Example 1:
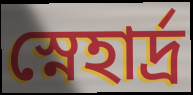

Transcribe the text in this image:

স্নেহার্দ্র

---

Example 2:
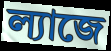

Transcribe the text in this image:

ল্যাজে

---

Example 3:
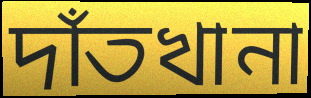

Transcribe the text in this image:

দাঁতখানা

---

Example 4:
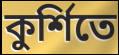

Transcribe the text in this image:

কুর্শিতে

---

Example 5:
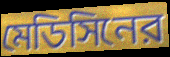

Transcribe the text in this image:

মেডিসিনের